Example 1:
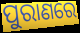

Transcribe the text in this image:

ପୁରାଣରେ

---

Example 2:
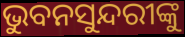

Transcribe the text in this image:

ଭୁବନସୁନ୍ଦରୀଙ୍କୁ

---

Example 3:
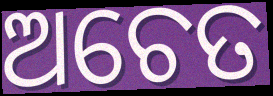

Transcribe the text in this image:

ଅଚେତ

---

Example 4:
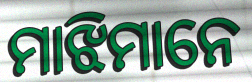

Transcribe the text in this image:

ମାଝିମାନେ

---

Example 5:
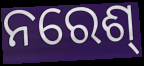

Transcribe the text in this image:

ନରେଶ୍